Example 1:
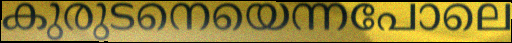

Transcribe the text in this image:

കുരുടനെയെന്നപോലെ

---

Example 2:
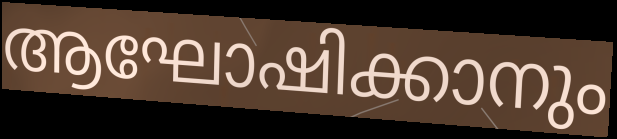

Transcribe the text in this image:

ആഘോഷിക്കാനും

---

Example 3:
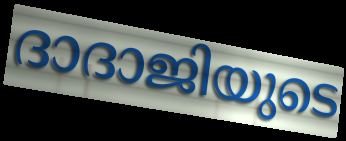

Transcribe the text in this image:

ദാദാജിയുടെ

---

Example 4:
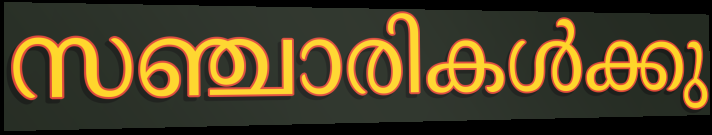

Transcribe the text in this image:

സഞ്ചാരികൾക്കു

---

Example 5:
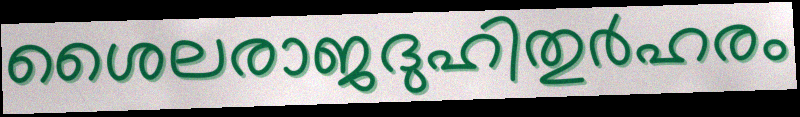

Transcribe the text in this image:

ശൈലരാജദുഹിതുർഹരം